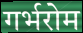
गर्भरोम